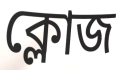
ক্লোজ